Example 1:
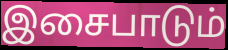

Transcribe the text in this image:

இசைபாடும்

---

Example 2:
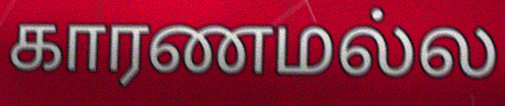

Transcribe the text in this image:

காரணமல்ல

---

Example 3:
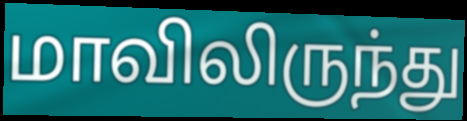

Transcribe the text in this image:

மாவிலிருந்து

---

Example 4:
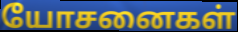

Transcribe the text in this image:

யோசனைகள்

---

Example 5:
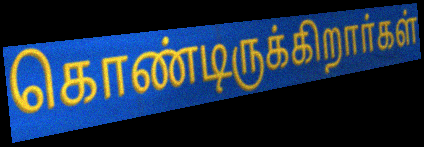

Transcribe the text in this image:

கொண்டிருக்கிறார்கள்